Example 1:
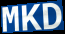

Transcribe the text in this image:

MKD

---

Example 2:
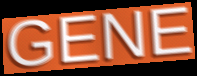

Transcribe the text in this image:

GENE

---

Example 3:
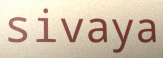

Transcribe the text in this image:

sivaya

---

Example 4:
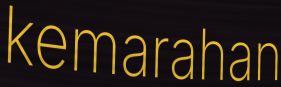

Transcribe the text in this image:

kemarahan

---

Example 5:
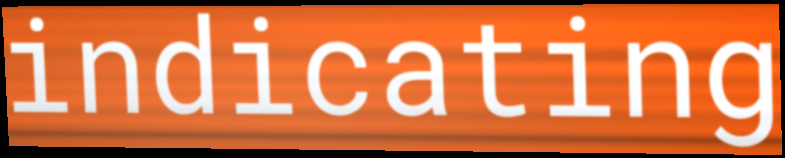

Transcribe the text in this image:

indicating